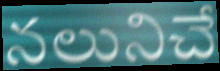
నలునిచే